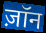
ज़ॉन